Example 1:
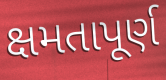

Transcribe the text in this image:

ક્ષમતાપૂર્ણ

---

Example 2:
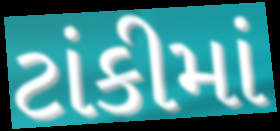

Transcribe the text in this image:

ટાંકીમાં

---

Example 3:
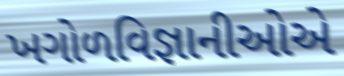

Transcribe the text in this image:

ખગોળવિજ્ઞાનીઓએ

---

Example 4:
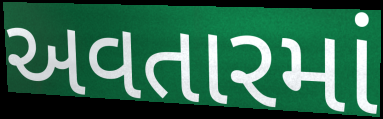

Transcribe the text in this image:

અવતારમાં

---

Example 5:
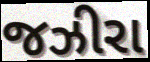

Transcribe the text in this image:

જઝીરા